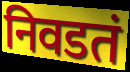
निवडतं